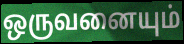
ஒருவனையும்